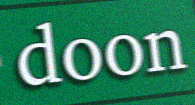
doon